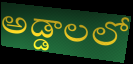
అడ్డాలలో